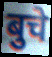
बुचे